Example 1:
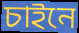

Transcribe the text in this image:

চাইনে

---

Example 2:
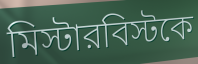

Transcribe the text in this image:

মিস্টারবিস্টকে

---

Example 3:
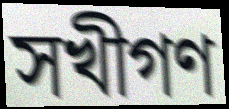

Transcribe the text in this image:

সখীগণ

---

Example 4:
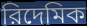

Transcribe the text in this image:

রিদেমিক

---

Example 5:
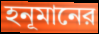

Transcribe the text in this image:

হনূমানের